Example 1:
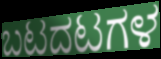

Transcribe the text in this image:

ಬಟದಟಗಳ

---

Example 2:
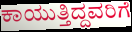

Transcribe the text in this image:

ಕಾಯುತ್ತಿದ್ದವರಿಗೆ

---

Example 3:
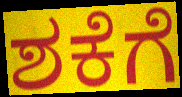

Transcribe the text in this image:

ಶಕೆಗೆ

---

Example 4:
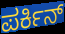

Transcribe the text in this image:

ಪರ್ಕಿನ್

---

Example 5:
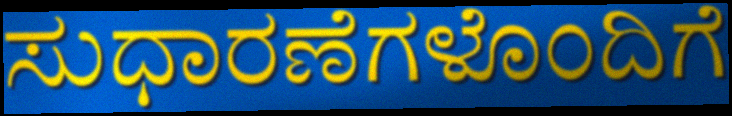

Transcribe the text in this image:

ಸುಧಾರಣೆಗಳೊಂದಿಗೆ